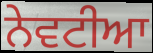
ਨੇਵਟੀਆ